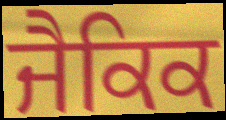
ਜੈਕਿਕ